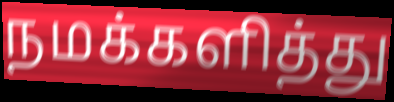
நமக்களித்து